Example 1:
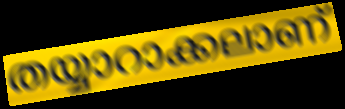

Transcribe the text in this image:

തയ്യാറാക്കലാണ്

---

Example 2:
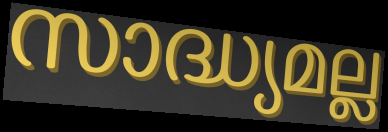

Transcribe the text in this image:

സാദ്ധ്യമല്ല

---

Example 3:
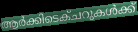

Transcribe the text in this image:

ആർക്കിടെക്ചറുകൾക്ക്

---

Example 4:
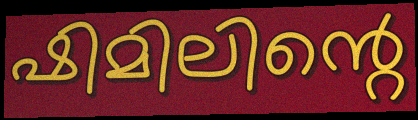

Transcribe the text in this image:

ഷിമിലിന്റെ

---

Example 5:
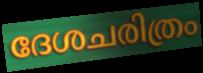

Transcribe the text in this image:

ദേശചരിത്രം